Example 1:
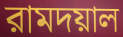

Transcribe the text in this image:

রামদয়াল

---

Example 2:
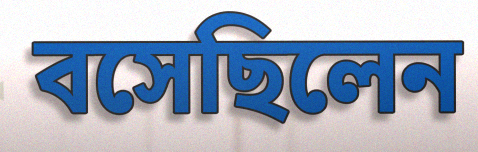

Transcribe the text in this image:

বসেছিলেন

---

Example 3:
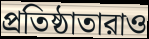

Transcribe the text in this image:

প্রতিষ্ঠাতারাও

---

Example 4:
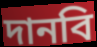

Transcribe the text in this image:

দানবি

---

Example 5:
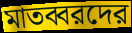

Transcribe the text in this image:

মাতব্বরদের